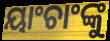
ୟାଂଚାଂଙ୍କୁ